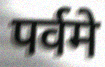
पर्वमे